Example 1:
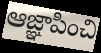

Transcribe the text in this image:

ఆజ్ఞాపించి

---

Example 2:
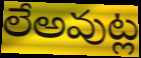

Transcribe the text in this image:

లేఅవుట్ల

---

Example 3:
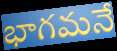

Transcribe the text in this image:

భాగమనే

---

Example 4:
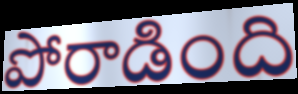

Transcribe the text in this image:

పోరాడింది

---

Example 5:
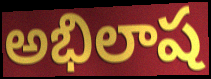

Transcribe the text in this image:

అభిలాష